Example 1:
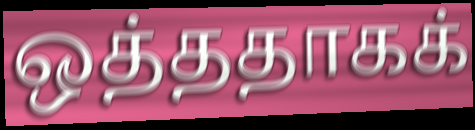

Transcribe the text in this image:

ஒத்ததாகக்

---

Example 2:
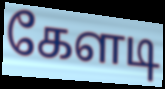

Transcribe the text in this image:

கேளடி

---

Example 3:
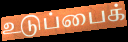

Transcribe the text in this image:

உடுப்பைக்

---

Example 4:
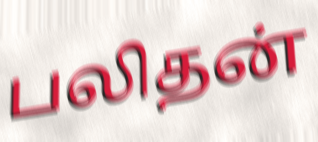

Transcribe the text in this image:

பலிதன்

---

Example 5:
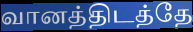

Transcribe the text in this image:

வானத்திடத்தே